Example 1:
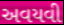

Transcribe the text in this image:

અવયવી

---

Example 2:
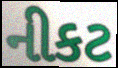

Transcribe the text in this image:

નીકટ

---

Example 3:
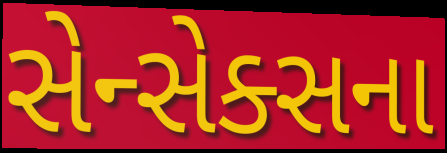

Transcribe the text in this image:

સેન્સેક્સના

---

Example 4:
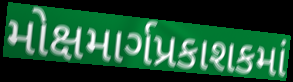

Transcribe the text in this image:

મોક્ષમાર્ગપ્રકાશકમાં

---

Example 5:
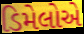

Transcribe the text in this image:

ડિમેલોએ